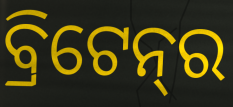
ବ୍ରିଟେନ୍‌ର